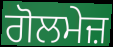
ਗੋਲਮੇਜ਼